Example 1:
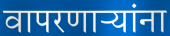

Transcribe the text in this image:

वापरणाऱ्यांना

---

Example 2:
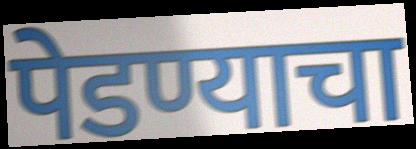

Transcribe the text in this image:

पेडण्याचा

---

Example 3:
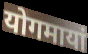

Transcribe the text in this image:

योगमायां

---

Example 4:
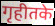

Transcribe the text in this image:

गृहीतके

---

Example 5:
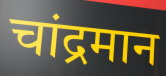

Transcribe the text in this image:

चांद्रमान